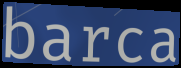
barca